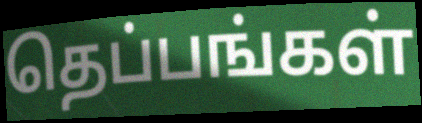
தெப்பங்கள்